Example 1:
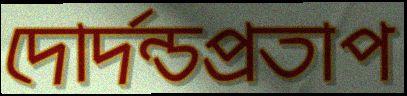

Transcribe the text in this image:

দোর্দন্ডপ্রতাপ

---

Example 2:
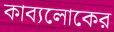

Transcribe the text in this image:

কাব্যলোকের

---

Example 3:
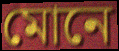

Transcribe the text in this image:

মোনে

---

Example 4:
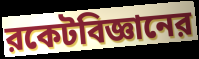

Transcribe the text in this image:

রকেটবিজ্ঞানের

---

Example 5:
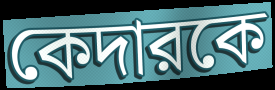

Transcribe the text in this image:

কেদারকে